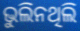
ଭୁଲିନଥିଲି